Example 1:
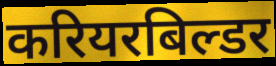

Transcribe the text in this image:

करियरबिल्डर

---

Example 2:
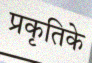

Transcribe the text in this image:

प्रकृतिके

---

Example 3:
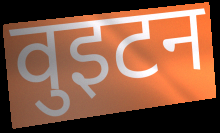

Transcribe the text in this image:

वुइटन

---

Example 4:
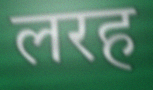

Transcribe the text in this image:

लरह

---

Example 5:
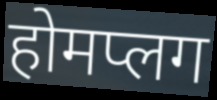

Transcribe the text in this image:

होमप्लग